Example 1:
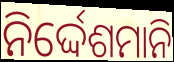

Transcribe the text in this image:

ନିର୍ଦ୍ଦେଶମାନି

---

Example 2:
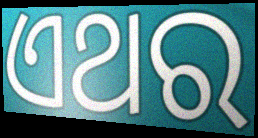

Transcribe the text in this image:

ଏଥର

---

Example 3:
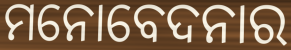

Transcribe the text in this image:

ମନୋବେଦନାର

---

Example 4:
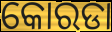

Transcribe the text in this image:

କୋରଡା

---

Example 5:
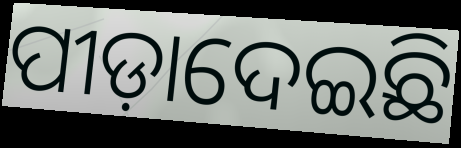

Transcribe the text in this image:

ପୀଡ଼ାଦେଇଛି